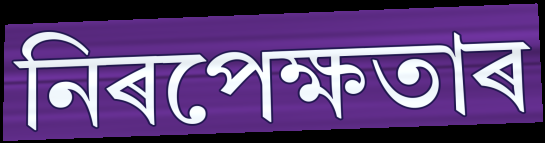
নিৰপেক্ষতাৰ